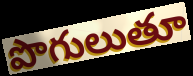
పొగులుతూ